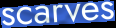
scarves